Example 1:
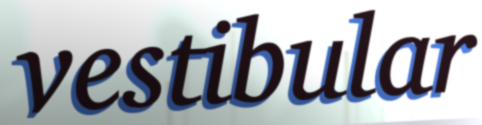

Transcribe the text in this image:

vestibular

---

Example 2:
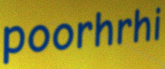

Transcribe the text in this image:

poorhrhi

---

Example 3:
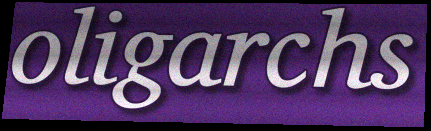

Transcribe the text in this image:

oligarchs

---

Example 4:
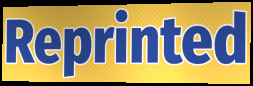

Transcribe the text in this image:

Reprinted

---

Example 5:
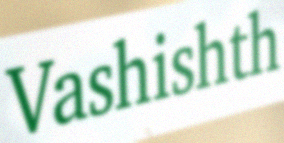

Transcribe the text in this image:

Vashishth